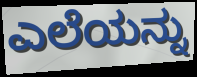
ಎಲೆಯನ್ನು